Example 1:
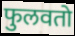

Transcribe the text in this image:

फुलवतो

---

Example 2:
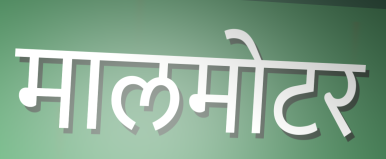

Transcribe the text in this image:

मालमोटर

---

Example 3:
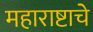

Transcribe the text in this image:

महाराष्टाचे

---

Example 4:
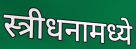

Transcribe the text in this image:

स्त्रीधनामध्ये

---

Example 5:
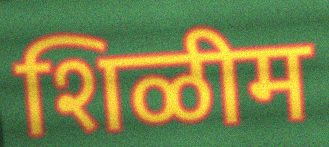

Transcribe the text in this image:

शिळीम